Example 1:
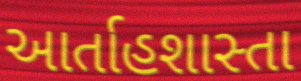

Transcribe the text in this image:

આર્તાહશાસ્તા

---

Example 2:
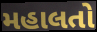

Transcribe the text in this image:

મહાલતો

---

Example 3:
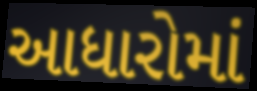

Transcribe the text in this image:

આધારોમાં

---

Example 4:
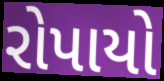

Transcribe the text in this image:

રોપાયો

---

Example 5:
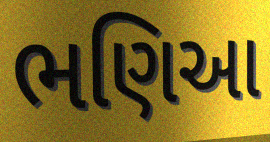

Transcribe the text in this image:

ભણિઆ